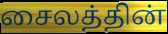
சைலத்தின்